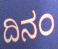
ದಿನಂ